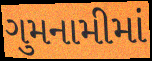
ગુમનામીમાં